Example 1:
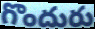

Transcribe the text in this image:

గొందురు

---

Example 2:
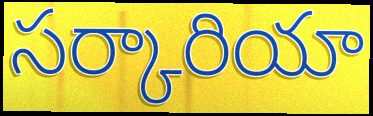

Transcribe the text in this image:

సర్కారియా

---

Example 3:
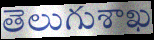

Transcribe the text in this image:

తెలుగుశాఖ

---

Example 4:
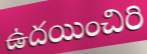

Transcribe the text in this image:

ఉదయించిరి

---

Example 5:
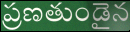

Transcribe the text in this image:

ప్రణతుండైన